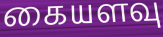
கையளவு